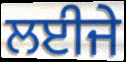
ਲਈਜੇ